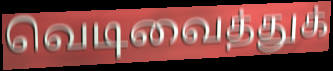
வெடிவைத்துக்